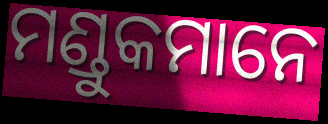
ମଣ୍ଡୁକମାନେ